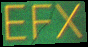
EFX